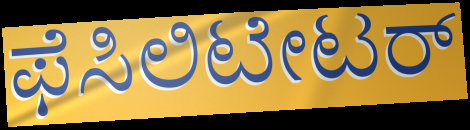
ಫೆಸಿಲಿಟೇಟರ್